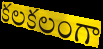
కలకలంగా